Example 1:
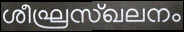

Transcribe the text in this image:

ശീഘ്രസ്ഖലനം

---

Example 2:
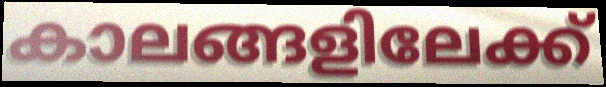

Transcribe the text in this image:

കാലങ്ങളിലേക്ക്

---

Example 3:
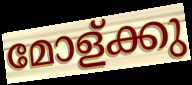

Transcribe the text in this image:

മോള്ക്കു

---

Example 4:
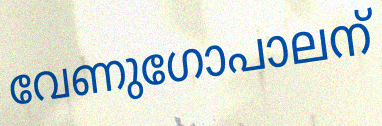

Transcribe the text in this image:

വേണുഗോപാലന്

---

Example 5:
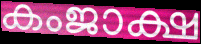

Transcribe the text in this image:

കംജാക്ഷ